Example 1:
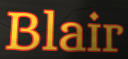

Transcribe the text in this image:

Blair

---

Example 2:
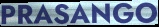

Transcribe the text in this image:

PRASANGO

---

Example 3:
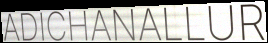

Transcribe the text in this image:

ADICHANALLUR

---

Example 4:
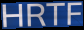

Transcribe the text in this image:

HRTF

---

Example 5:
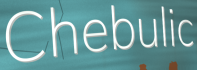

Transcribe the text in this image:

Chebulic